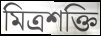
মিত্ৰশক্তি